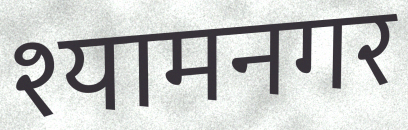
श्यामनगर